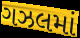
ગઝલમાં